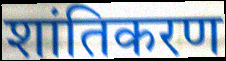
शांतिकरण